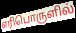
எரிபொருளில்